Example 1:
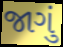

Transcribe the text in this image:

જાગું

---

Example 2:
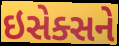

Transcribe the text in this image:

ઇસેક્સને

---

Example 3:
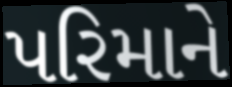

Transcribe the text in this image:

પરિમાને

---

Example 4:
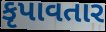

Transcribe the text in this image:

કૃપાવતાર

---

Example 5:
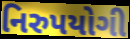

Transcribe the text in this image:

નિરુપયોગી